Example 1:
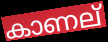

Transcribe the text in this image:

കാണല്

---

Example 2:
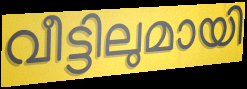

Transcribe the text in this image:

വീട്ടിലുമായി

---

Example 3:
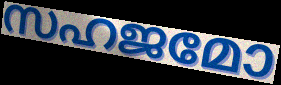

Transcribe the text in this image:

സഹജമോ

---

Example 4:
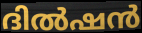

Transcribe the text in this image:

ദിൽഷൻ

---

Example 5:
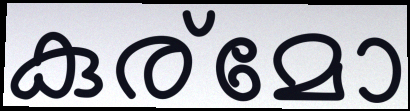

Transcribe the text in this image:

കുര്മോ